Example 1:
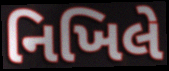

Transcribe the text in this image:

નિખિલે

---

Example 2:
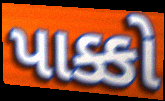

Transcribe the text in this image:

પાક્કો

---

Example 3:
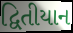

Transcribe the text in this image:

દ્વિતીયાન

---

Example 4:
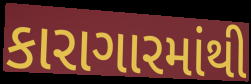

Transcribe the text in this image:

કારાગારમાંથી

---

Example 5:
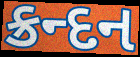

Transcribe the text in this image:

ક્રન્દન